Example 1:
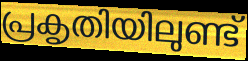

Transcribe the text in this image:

പ്രകൃതിയിലുണ്ട്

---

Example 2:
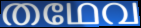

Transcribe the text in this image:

തഥേവ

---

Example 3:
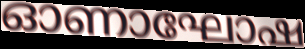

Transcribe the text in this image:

ഓണാഘോഷ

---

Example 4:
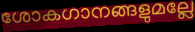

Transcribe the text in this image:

ശോകഗാനങ്ങളുമല്ലേ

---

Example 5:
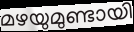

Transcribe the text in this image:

മഴയുമുണ്ടായി